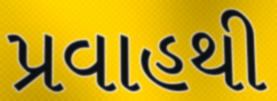
પ્રવાહથી